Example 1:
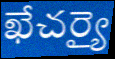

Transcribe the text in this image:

ఖేచర్యై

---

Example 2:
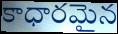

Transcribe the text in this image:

కాధారమైన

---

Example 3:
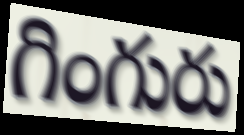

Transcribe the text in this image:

గింగురు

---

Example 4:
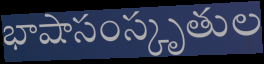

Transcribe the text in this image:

భాషాసంస్కృతుల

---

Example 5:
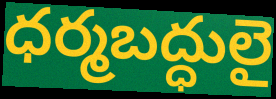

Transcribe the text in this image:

ధర్మబద్ధులై